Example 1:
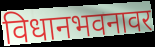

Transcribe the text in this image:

विधानभवनावर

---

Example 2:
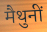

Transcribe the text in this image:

मैथुनीं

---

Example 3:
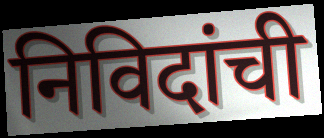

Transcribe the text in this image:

निविदांची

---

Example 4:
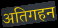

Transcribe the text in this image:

अतिगहन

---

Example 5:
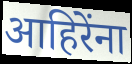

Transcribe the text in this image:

आहिरेंना